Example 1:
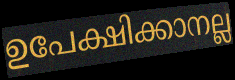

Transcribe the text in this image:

ഉപേക്ഷിക്കാനല്ല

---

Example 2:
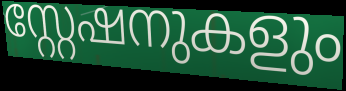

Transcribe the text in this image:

സ്റ്റേഷനുകളും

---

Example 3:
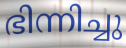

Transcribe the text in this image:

ഭിന്നിച്ചു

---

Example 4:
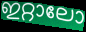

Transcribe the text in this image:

ഇറ്റാലോ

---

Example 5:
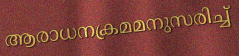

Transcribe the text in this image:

ആരാധനക്രമമനുസരിച്ച്